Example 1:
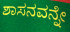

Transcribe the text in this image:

ಶಾಸನವನ್ನೇ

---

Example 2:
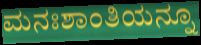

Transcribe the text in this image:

ಮನಃಶಾಂತಿಯನ್ನೂ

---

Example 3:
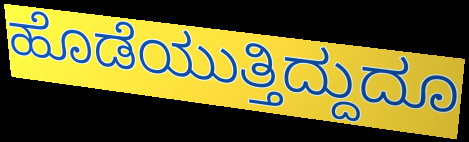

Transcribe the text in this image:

ಹೊಡೆಯುತ್ತಿದ್ದುದೂ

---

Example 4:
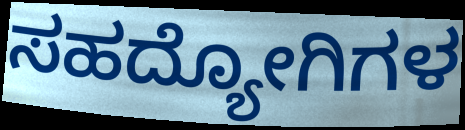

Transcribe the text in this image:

ಸಹದ್ಯೋಗಿಗಳ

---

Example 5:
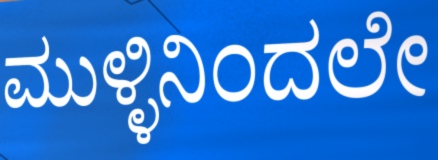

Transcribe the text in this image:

ಮುಳ್ಳಿನಿಂದಲೇ